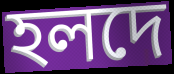
হলদে